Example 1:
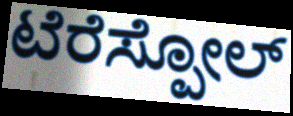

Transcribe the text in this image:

ಟೆರೆಸ್ಪೋಲ್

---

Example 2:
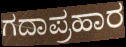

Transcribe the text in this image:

ಗದಾಪ್ರಹಾರ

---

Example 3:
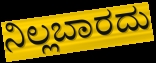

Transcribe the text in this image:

ನಿಲ್ಲಬಾರದು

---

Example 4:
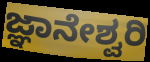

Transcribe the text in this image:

ಜ್ಞಾನೇಶ್ವರಿ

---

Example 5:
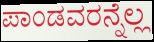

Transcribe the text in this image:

ಪಾಂಡವರನ್ನೆಲ್ಲ